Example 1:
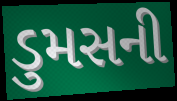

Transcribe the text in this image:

ડુમસની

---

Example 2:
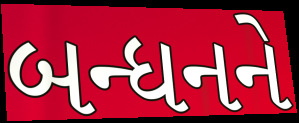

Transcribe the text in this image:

બન્ધનને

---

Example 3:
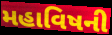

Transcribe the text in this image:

મહાવિષની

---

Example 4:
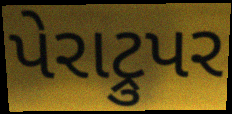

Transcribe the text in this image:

પેરાટ્રુપર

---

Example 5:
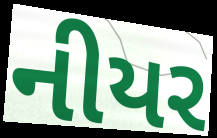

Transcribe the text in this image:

નીયર